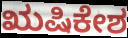
ಋಷಿಕೇಶ